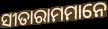
ସୀତାରାମମାନେ